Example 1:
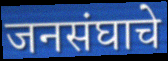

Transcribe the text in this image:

जनसंघाचे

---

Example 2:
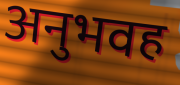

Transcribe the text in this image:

अनुभवह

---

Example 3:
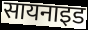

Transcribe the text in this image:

सायनाइड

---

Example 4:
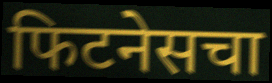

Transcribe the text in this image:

फिटनेसचा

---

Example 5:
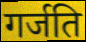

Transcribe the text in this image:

गर्जति